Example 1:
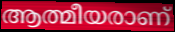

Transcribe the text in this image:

ആത്മീയരാണ്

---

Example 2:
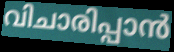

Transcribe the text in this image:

വിചാരിപ്പാൻ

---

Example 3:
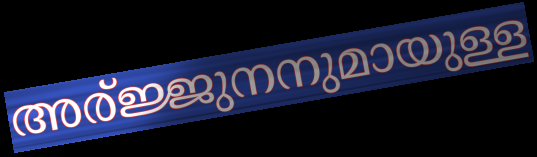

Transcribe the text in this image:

അര്ജ്ജുനനുമായുള്ള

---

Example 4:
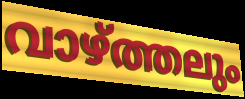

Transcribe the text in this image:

വാഴ്ത്തലും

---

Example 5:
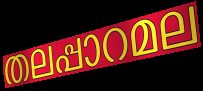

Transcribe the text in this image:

തലപ്പാറമല